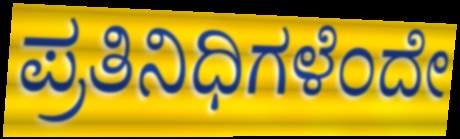
ಪ್ರತಿನಿಧಿಗಳೆಂದೇ